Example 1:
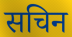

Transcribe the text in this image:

सचिन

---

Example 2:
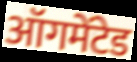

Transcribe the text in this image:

ऑगमेंटेड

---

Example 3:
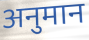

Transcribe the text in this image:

अनुमान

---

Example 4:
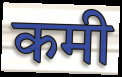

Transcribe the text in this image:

कमी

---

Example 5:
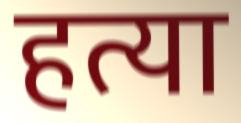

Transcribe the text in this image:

हत्या